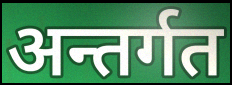
अन्तर्गत